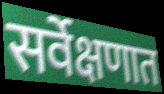
सर्वेक्षणात